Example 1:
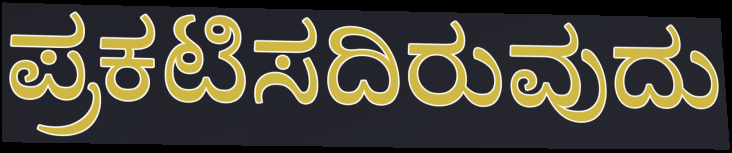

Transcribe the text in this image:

ಪ್ರಕಟಿಸದಿರುವುದು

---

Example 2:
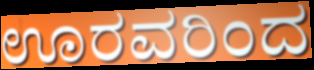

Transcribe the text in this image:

ಊರವರಿಂದ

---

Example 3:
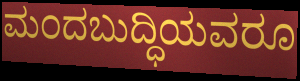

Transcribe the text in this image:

ಮಂದಬುದ್ಧಿಯವರೂ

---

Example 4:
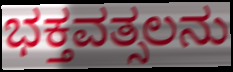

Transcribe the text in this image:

ಭಕ್ತವತ್ಸಲನು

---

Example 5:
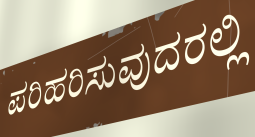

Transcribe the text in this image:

ಪರಿಹರಿಸುವುದರಲ್ಲಿ